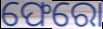
ଫେରୋ